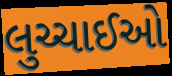
લુચ્ચાઈઓ